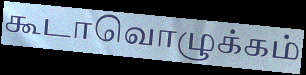
கூடாவொழுக்கம்